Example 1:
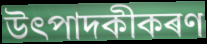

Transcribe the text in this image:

উৎপাদকীকৰণ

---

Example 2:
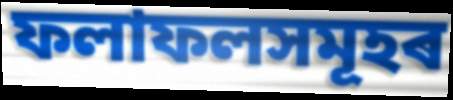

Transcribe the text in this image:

ফলাফলসমূহৰ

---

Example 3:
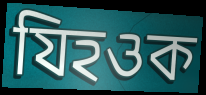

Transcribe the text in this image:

যিহওক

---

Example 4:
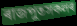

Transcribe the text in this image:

ৰাজপুতসকলৰ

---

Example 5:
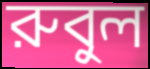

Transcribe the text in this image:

ৰুবুল